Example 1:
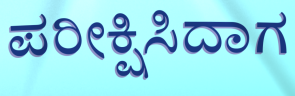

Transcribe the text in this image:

ಪರೀಕ್ಷಿಸಿದಾಗ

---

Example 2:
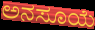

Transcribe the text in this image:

ಅನಸೂಯೆ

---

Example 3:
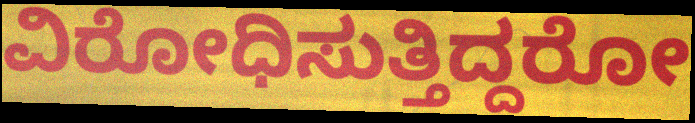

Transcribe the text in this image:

ವಿರೋಧಿಸುತ್ತಿದ್ದರೋ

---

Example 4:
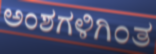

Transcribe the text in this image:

ಅಂಶಗಳಿಗಿಂತ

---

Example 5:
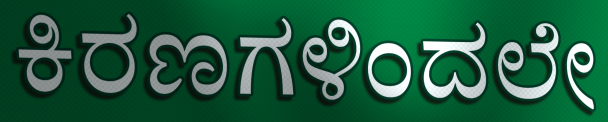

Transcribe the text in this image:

ಕಿರಣಗಳಿಂದಲೇ